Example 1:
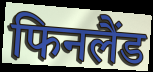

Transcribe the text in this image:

फिनलैंड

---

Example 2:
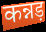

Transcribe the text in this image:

कन्नड़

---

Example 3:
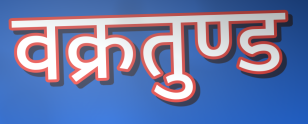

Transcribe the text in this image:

वक्रतुण्ड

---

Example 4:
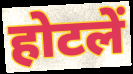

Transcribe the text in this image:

होटलें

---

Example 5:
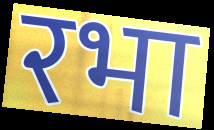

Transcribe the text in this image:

रभा